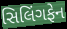
સિલિંગફેન